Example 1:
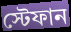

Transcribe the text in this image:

স্টেফান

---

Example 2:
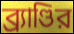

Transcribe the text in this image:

ব্র্যাণ্ডির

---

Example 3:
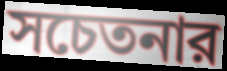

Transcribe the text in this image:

সচেতনার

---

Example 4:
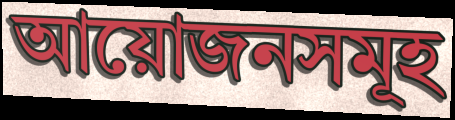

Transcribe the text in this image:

আয়োজনসমূহ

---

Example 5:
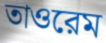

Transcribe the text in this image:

তাওরেম